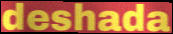
deshada